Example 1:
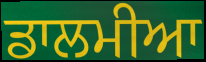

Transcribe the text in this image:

ਡਾਲਮੀਆ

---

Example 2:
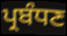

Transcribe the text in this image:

ਪ੍ਰਬੰਧਣ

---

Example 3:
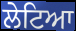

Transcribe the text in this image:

ਲੇਟਿਆ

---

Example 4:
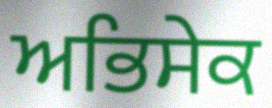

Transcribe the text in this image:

ਅਭਿਸੇਕ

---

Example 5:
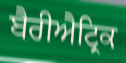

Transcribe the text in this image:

ਬੈਰੀਐਟ੍ਰਿਕ